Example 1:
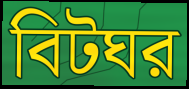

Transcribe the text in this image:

বিটঘর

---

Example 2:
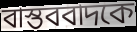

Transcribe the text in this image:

বাস্তববাদকে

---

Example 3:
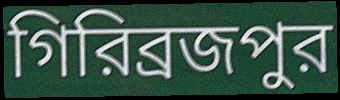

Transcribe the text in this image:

গিরিব্রজপুর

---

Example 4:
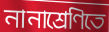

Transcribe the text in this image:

নানাশ্রেণিতে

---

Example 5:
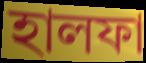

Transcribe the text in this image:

হালফা